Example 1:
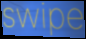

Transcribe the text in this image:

swipe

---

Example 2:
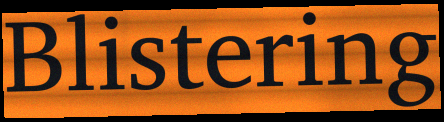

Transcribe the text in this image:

Blistering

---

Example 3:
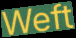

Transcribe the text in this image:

Weft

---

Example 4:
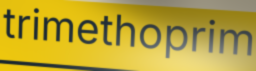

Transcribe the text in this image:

trimethoprim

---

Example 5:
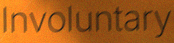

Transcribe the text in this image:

Involuntary